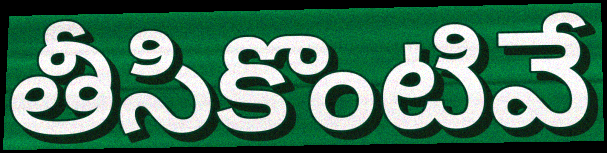
తీసికొంటివే